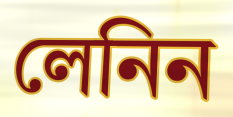
লেনিন